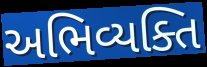
અભિવ્યક્તિ